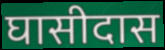
घासीदास